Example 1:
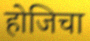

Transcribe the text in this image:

होजिचा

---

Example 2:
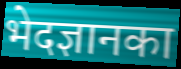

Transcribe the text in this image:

भेदज्ञानका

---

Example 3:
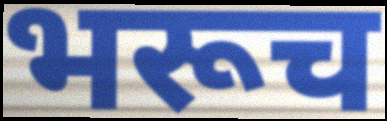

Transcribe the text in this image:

भरूच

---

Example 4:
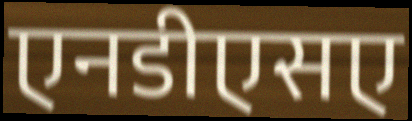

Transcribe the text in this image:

एनडीएसए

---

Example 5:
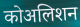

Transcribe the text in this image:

कोअलिशन